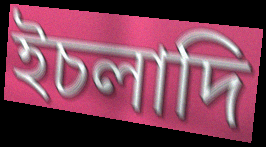
ইচলাদি